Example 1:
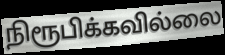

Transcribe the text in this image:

நிரூபிக்கவில்லை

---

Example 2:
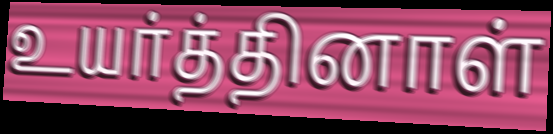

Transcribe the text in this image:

உயர்த்தினாள்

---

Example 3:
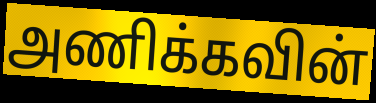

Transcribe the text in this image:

அணிக்கவின்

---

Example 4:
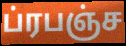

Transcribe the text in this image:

ப்ரபஞ்ச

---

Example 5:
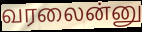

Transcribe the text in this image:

வரலைன்னு